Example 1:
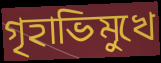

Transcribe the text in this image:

গৃহাভিমুখে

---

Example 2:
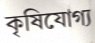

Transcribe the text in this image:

কৃষিযোগ্য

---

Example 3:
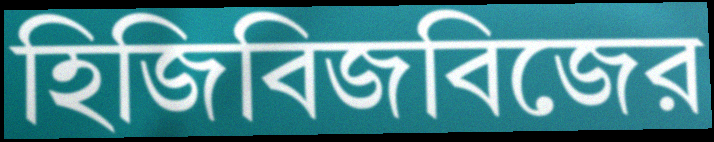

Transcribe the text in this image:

হিজিবিজবিজের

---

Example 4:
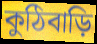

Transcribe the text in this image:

কুঠিবাড়ি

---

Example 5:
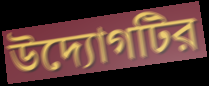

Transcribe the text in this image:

উদ্যোগটির